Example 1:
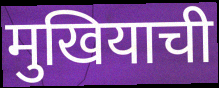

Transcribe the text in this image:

मुखियाची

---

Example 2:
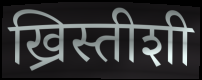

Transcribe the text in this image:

ख्रिस्तीशी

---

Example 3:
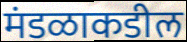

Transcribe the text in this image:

मंडळाकडील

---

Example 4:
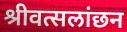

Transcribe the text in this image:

श्रीवत्सलांछन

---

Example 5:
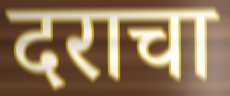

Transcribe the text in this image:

दराचा